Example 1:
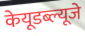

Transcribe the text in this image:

केयूडब्ल्यूजे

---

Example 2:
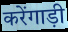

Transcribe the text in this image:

करेंगाड़ी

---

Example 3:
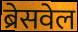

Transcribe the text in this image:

ब्रेसवेल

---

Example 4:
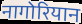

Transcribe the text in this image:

नागोरियान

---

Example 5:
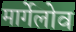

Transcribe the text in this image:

मार्गेलोव